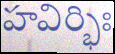
హవిర్భిః